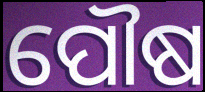
ପୌଷ